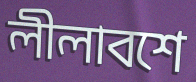
লীলাবশে